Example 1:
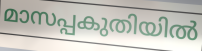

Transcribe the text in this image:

മാസപ്പകുതിയിൽ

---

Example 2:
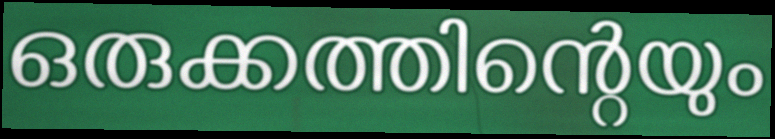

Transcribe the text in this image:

ഒരുക്കത്തിന്റെയും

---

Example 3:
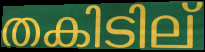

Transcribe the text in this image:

തകിടില്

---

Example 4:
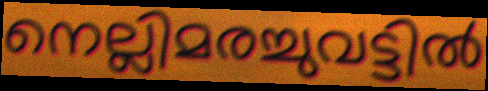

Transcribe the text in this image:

നെല്ലിമരച്ചുവട്ടിൽ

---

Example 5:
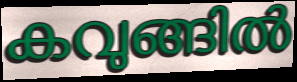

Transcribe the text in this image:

കവുങ്ങിൽ